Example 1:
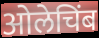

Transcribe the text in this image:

ओलेचिंब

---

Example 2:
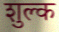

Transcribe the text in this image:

शुल्क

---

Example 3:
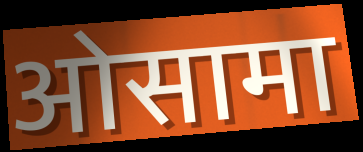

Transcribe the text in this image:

ओसामा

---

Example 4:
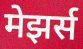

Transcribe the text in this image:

मेझर्स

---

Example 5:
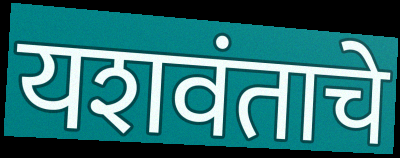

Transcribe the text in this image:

यशवंताचे